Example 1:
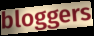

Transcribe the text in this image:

bloggers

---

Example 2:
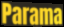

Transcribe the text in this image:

Parama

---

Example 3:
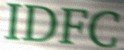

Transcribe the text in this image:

IDFC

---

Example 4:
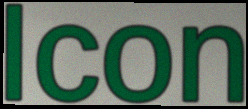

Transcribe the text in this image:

Icon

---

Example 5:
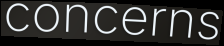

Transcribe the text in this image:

concerns